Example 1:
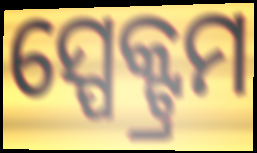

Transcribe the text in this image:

ସ୍ପେକ୍ଟ୍ରମ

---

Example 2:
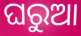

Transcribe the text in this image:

ଘରୁଆ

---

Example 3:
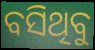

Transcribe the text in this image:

ବସିଥିବୁ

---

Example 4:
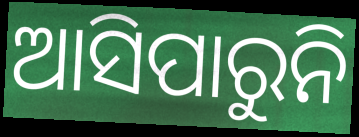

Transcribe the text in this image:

ଆସିପାରୁନି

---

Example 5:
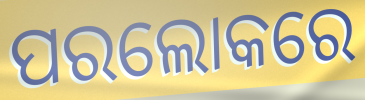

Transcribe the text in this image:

ପରଲୋକରେ